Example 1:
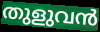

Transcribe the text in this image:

തുളുവൻ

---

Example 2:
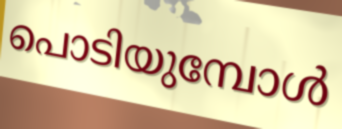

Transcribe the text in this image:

പൊടിയുമ്പോൾ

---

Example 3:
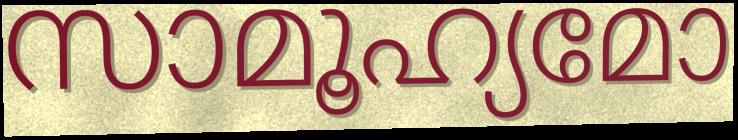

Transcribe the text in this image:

സാമൂഹ്യമോ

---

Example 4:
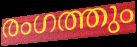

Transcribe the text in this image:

രംഗത്തും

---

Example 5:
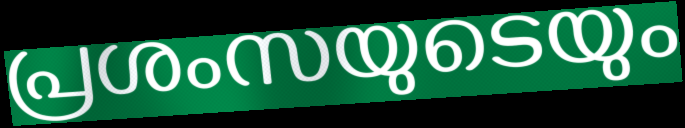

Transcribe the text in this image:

പ്രശംസയുടെയും